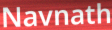
Navnath